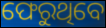
ଫେରୁଥିବେ